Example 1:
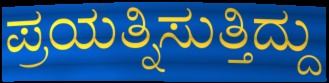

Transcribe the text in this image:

ಪ್ರಯತ್ನಿಸುತ್ತಿದ್ದು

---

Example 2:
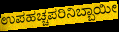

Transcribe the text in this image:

ಉಪಹಚ್ಚಪರಿನಿಬ್ಬಾಯೀ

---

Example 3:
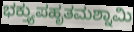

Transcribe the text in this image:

ಭಕ್ತ್ಯುಪಹೃತಮಶ್ನಾಮಿ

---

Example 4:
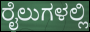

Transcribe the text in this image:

ರೈಲುಗಳಲ್ಲಿ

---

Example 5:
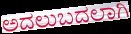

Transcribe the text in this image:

ಅದಲುಬದಲಾಗಿ